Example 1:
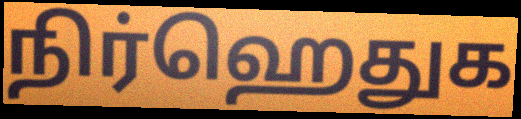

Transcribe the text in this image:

நிர்ஹெதுக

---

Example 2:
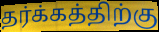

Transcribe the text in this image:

தர்க்கத்திற்கு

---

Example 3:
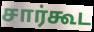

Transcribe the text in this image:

சார்கூட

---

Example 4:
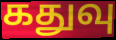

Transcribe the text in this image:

கதுவு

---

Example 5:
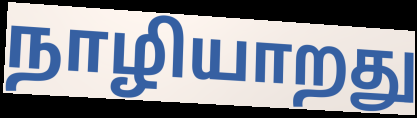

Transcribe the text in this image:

நாழியாறது